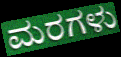
ಮರಗಳು